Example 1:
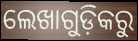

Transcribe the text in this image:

ଲେଖାଗୁଡ଼ିକରୁ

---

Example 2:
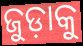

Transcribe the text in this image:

ଜୁଡ଼ାକୁ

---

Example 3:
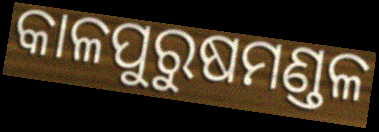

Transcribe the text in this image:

କାଳପୁରୁଷମଣ୍ଡଳ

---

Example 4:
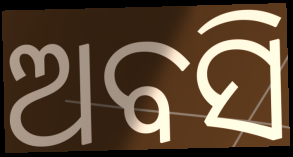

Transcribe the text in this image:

ଅବସି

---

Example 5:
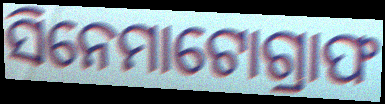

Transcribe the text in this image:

ସିନେମାଟୋଗ୍ରାଫ